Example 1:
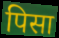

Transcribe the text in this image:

पिसा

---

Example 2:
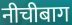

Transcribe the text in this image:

नीचीबाग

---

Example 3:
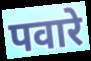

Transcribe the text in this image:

पवारे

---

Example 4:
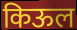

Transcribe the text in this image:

किऊल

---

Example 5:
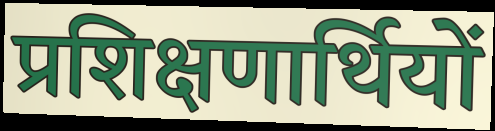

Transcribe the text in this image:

प्रशिक्षणार्थियों